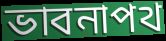
ভাবনাপথ